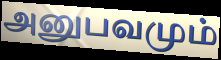
அனுபவமும்